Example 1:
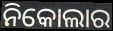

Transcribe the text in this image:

ନିକୋଲାର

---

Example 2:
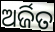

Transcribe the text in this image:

ଅର୍ଜିତ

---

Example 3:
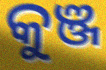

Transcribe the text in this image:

କୁଞ୍ଜ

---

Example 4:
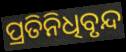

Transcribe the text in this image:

ପ୍ରତିନିଧିବୃନ୍ଦ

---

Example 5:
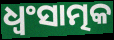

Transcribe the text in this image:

ଧ୍ଵଂସାତ୍ମକ